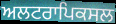
ਅਲਟਰਾਪਿਕਸਲ